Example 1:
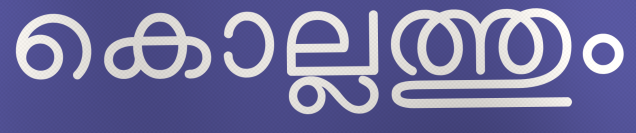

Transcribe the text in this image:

കൊല്ലത്തും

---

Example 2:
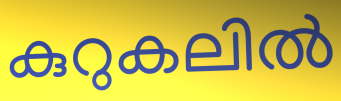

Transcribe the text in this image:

കുറുകലിൽ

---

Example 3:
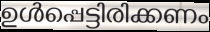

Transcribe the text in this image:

ഉൾപ്പെട്ടിരിക്കണം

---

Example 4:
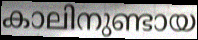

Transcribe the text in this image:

കാലിനുണ്ടായ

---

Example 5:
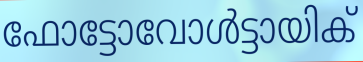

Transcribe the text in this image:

ഫോട്ടോവോൾട്ടായിക്